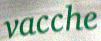
vacche